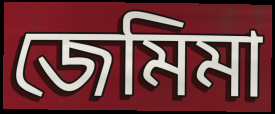
জেমিমা